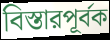
বিস্তারপূর্বক